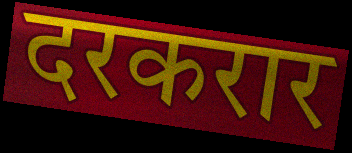
दरकरार